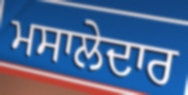
ਮਸਾਲੇਦਾਰ